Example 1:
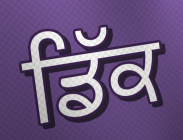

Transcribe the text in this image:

ਡਿੱਕ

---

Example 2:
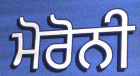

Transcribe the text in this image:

ਮੋਰੋਨੀ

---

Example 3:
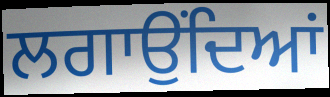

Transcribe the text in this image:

ਲਗਾਉੰਦਿਆਂ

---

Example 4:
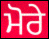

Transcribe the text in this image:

ਮੋਰੇ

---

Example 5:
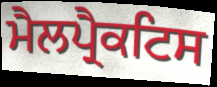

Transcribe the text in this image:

ਮੈਲਪ੍ਰੈਕਟਿਸ